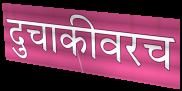
दुचाकीवरच